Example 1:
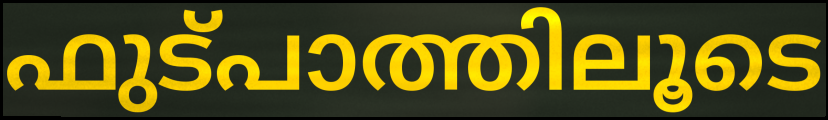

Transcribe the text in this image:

ഫുട്പാത്തിലൂടെ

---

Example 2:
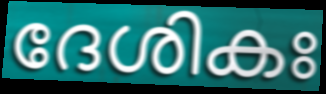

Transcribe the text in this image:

ദേശികഃ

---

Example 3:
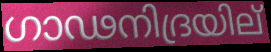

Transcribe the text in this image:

ഗാഢനിദ്രയില്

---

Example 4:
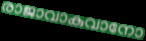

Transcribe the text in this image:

രാജാവാകുവാനോ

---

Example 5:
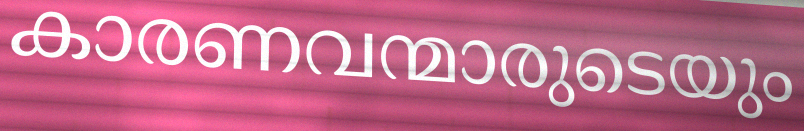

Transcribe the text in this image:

കാരണവന്മാരുടെയും